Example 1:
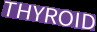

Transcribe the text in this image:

THYROID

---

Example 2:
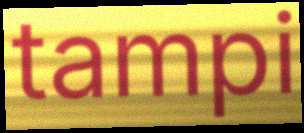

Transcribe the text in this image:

tampi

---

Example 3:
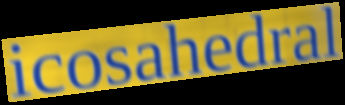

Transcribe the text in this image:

icosahedral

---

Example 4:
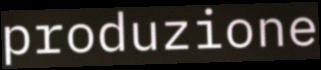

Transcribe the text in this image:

produzione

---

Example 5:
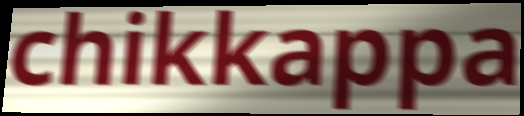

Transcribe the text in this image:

chikkappa